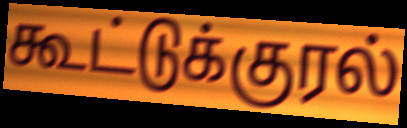
கூட்டுக்குரல்